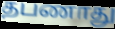
தபணாது